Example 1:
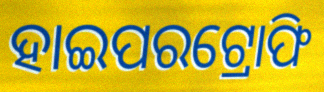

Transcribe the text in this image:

ହାଇପରଟ୍ରୋଫି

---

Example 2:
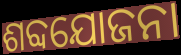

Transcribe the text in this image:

ଶବ୍ଦଯୋଜନା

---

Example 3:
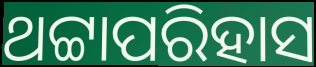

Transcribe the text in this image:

ଥଟ୍ଟାପରିହାସ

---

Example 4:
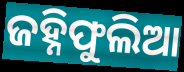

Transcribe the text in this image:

ଜହ୍ନିଫୁଲିଆ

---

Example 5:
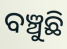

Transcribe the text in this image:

ବଞ୍ଚୁଛି